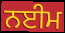
ਨਈਮ